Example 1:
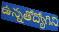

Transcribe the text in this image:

ఉన్నతోద్యోగిని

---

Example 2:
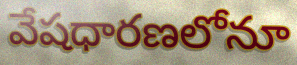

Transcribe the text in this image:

వేషధారణలోనూ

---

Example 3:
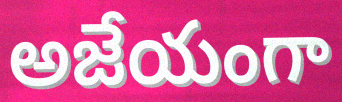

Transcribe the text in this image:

అజేయంగా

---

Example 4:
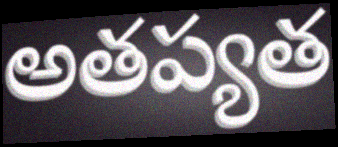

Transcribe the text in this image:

అతప్యత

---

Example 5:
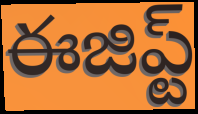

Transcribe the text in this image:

ఈజిప్ట్